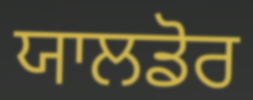
ਯਾਲਡੋਰ